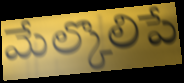
మేల్కొలిపే